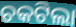
ଚକଟିଲା